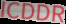
ICDDR